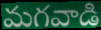
మగవాడి